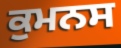
ਕੁਮਨਸ